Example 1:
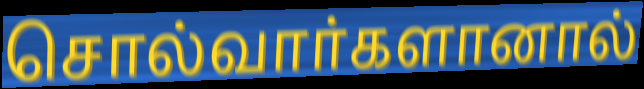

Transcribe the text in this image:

சொல்வார்களானால்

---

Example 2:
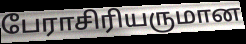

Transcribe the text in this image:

பேராசிரியருமான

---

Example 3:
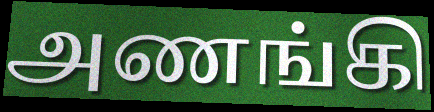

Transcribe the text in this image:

அணங்கி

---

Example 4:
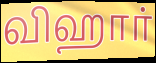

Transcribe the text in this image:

விஹார்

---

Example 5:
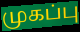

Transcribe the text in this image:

முகப்பு